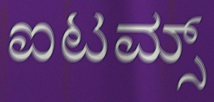
ಐಟಮ್ಸ್